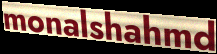
monalshahmd